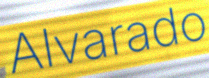
Alvarado